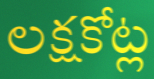
లక్షకోట్ల